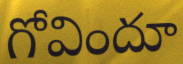
గోవిందూ